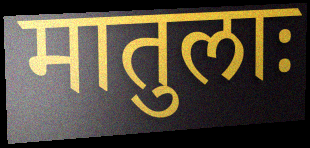
मातुलाः